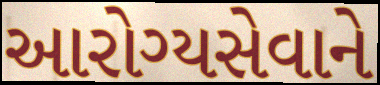
આરોગ્યસેવાને